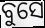
ବୁସେ